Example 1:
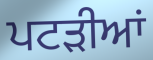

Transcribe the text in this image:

ਪਟਡ਼ੀਆਂ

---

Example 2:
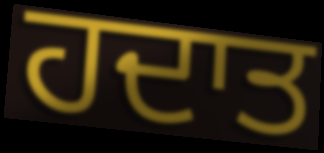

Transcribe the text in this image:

ਹਦਾਤ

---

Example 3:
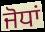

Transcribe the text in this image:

ਜੋਧਾਂ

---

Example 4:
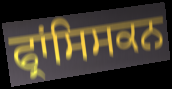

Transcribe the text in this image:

ਫ੍ਰਾਂਸਿਸਕਨ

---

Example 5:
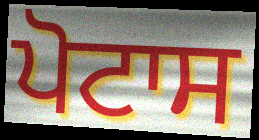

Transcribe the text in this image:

ਪੋਟਾਸ